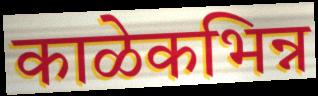
काळेकभिन्न